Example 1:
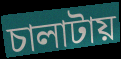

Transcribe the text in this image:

চালাটায়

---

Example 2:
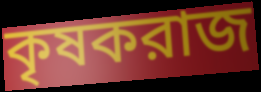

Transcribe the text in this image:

কৃষকরাজ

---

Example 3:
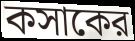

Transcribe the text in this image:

কসাকের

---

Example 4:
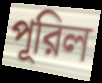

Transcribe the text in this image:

পূরিল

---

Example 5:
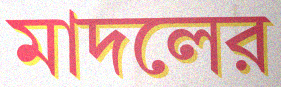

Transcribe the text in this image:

মাদলের